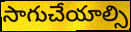
సాగుచేయాల్సి